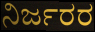
ನಿರ್ಜರರ